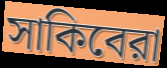
সাকিবেরা